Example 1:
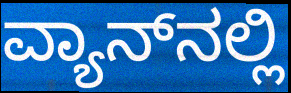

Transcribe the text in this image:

ವ್ಯಾನ್‌ನಲ್ಲಿ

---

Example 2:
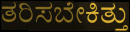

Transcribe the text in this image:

ತರಿಸಬೇಕಿತ್ತು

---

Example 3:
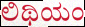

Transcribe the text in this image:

ಲಿಥಿಯಂ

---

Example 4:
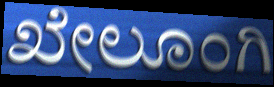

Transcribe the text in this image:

ಖೇಲೂಂಗಿ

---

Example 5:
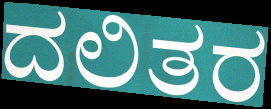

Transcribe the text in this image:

ದಲಿತರ